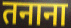
तनाना